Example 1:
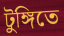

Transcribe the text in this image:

টুঙ্গিতে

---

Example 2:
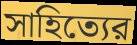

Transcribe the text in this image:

সাহিত্যের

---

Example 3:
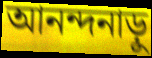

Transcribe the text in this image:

আনন্দনাড়ু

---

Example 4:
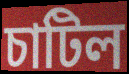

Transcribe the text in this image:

চাটিল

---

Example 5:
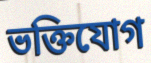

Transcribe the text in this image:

ভক্তিযোগ